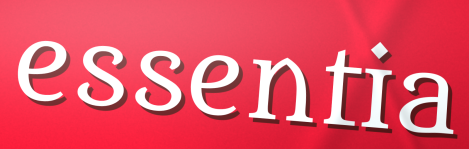
essentia